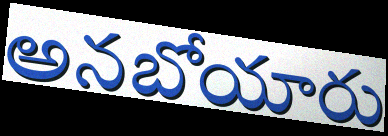
అనబోయారు